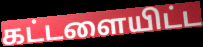
கட்டளையிட்ட